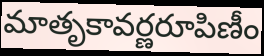
మాతృకావర్ణరూపిణీం